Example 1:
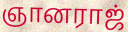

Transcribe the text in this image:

ஞானராஜ்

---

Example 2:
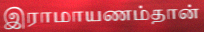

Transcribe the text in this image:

இராமாயணம்தான்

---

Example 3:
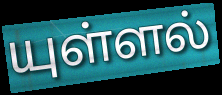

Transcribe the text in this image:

யுள்ளல்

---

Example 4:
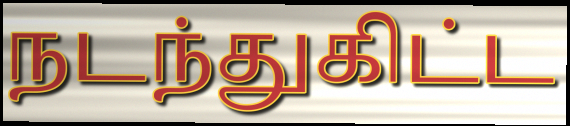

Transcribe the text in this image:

நடந்துகிட்ட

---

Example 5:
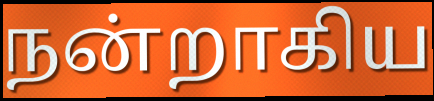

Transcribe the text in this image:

நன்றாகிய